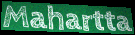
Mahartta